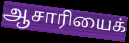
ஆசாரியைக்